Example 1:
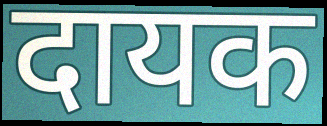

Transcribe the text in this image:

दायक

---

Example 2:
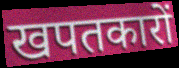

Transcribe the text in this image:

खपतकारों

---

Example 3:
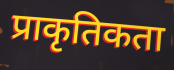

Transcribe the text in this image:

प्राकृतिकता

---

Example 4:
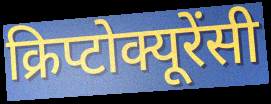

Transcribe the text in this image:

क्रिप्टोक्यूरेंसी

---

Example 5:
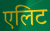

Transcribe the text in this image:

एलिट